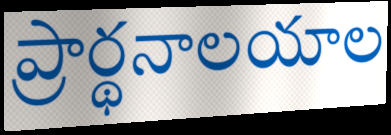
ప్రార్థనాలయాల